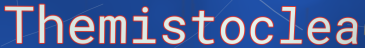
Themistoclea